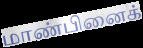
மாண்பினைக்